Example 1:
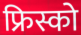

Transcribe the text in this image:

फ्रिस्को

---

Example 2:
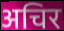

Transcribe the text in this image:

अचिर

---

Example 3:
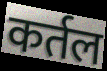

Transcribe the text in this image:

कर्तल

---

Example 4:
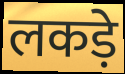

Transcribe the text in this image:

लकड़े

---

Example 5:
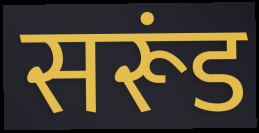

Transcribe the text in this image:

सरूंड